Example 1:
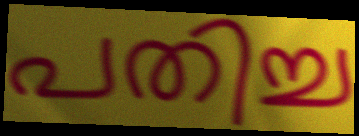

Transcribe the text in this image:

പതിച്ച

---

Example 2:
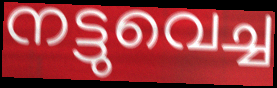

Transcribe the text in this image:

നട്ടുവെച്ച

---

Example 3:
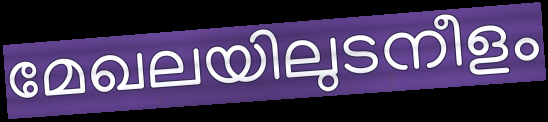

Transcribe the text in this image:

മേഖലയിലുടനീളം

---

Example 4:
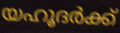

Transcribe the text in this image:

യഹൂദർക്ക്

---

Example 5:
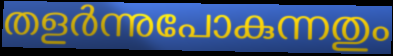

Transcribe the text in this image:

തളർന്നുപോകുന്നതും